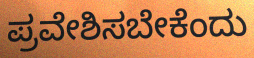
ಪ್ರವೇಶಿಸಬೇಕೆಂದು